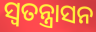
ସ୍ଵତନ୍ତ୍ରାସନ